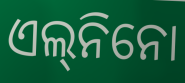
ଏଲ୍‌ନିନୋ